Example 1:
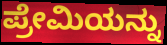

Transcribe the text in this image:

ಪ್ರೇಮಿಯನ್ನು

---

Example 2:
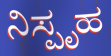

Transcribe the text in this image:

ನಿಸ್ಪೃಹ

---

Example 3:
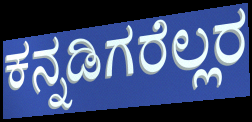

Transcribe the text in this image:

ಕನ್ನಡಿಗರೆಲ್ಲರ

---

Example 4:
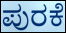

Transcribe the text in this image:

ಪುರಕೆ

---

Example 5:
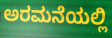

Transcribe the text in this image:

ಅರಮನೆಯಲ್ಲಿ